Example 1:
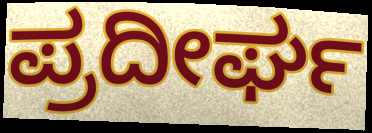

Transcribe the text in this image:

ಪ್ರದೀರ್ಘ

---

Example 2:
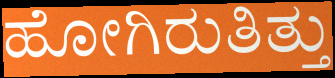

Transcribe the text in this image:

ಹೋಗಿರುತಿತ್ತು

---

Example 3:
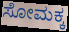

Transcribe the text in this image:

ಸೋಮಕ್ಕ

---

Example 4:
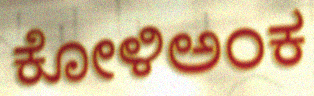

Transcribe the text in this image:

ಕೋಳಿಅಂಕ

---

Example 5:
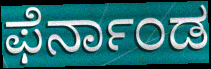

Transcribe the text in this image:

ಫೆರ್ನಾಂಡ